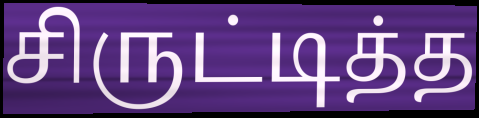
சிருட்டித்த